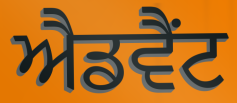
ਐਡਵੈਂਟ